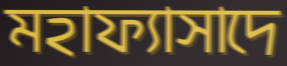
মহাফ্যাসাদে